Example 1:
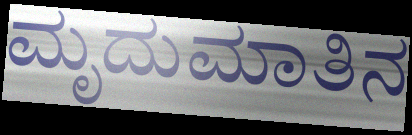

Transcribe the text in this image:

ಮೃದುಮಾತಿನ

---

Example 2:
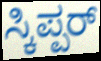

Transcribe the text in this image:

ಸ್ಕಿಪ್ಪರ್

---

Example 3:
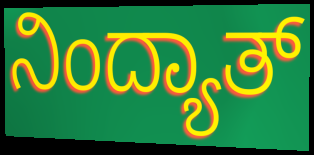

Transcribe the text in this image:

ನಿಂದ್ಯಾತ್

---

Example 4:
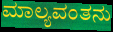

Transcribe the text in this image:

ಮಾಲ್ಯವಂತನು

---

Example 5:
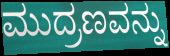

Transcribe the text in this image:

ಮುದ್ರಣವನ್ನು